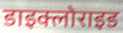
डाइक्लोराइड